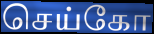
செய்கோ